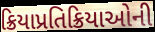
ક્રિયાપ્રતિક્રિયાઓની